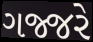
ગજ્જરે